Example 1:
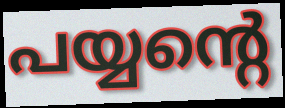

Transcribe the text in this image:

പയ്യന്റെ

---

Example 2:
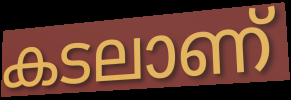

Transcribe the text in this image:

കടലാണ്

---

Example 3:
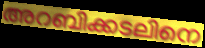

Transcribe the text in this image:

അറബിക്കടലിനെ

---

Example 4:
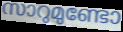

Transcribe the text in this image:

സാറുമുണ്ടോ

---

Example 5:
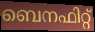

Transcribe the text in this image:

ബെനഫിറ്റ്